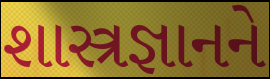
શાસ્ત્રજ્ઞાનને